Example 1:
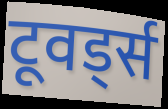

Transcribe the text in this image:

टूवर्ड्स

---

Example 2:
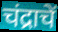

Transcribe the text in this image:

चंद्राचें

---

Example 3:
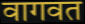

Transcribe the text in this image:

वागवत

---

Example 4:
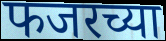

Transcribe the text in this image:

फजरच्या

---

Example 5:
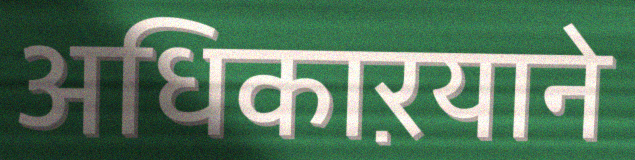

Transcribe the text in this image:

अधिकाऱयाने